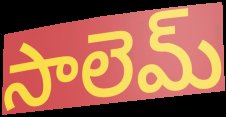
సాలెమ్